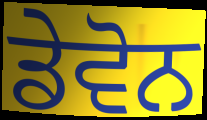
ਡੇਵੋਨ